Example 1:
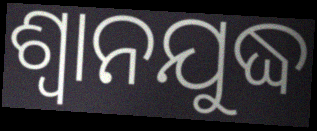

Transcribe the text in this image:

ଶ୍ଵାନଯୁଦ୍ଧ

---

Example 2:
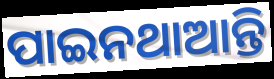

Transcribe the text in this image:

ପାଇନଥାଆନ୍ତି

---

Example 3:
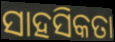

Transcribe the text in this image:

ସାହସିକତା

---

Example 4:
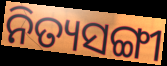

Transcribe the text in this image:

ନିତ୍ୟସଙ୍ଗୀ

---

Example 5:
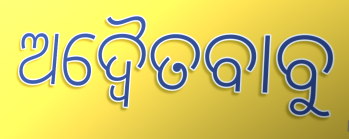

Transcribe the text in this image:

ଅଦ୍ୱୈତବାବୁ